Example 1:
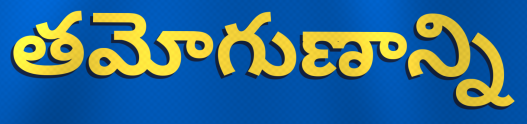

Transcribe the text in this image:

తమోగుణాన్ని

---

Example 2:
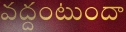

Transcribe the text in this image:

వద్దంటుందా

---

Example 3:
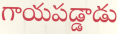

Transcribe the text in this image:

గాయపడ్డాడు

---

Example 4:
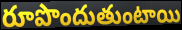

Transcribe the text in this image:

రూపొందుతుంటాయి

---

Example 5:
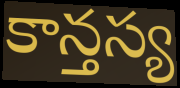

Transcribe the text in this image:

కాన్తస్య